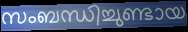
സംബന്ധിച്ചുണ്ടായ